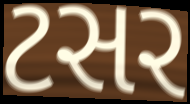
ટસર